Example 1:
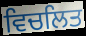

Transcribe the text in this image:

ਵਿਚਲਿਤ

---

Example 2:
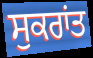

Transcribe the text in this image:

ਸੁਕਰਾਂਤ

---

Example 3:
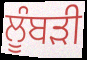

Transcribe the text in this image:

ਲੂੰਬੜੀ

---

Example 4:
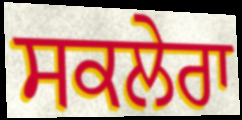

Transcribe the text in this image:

ਸਕਲੇਰਾ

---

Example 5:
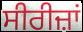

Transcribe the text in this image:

ਸੀਰੀਜ਼ਾਂ